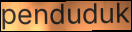
penduduk